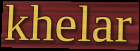
khelar